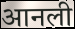
आनली